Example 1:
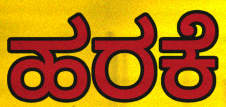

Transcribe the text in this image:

ಹರಕೆ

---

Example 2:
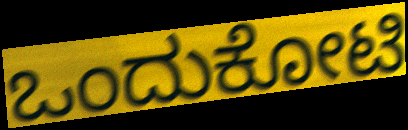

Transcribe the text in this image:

ಒಂದುಕೋಟಿ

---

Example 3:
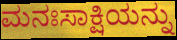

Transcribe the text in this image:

ಮನಃಸಾಕ್ಷಿಯನ್ನು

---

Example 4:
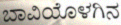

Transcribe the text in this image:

ಬಾವಿಯೊಳಗಿನ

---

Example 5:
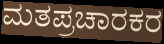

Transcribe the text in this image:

ಮತಪ್ರಚಾರಕರ